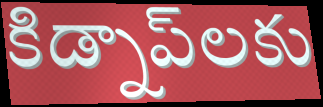
కిడ్నాప్‌లకు